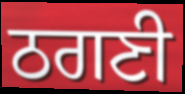
ਠਗਣੀ